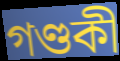
গণ্ডকী